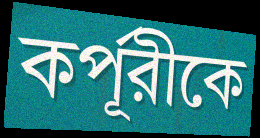
কর্পূরীকে